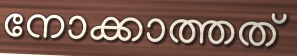
നോക്കാത്തത്